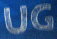
UG